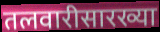
तलवारीसारख्या